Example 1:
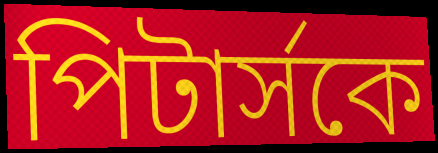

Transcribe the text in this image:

পিটার্সকে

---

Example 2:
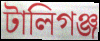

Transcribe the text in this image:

টালিগঞ্জ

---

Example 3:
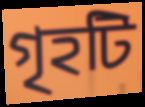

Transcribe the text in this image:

গৃহটি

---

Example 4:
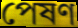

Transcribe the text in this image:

পেষণ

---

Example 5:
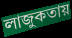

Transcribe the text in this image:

লাজুকতায়